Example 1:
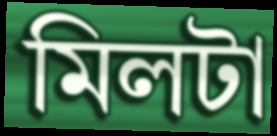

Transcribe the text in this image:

মিলটা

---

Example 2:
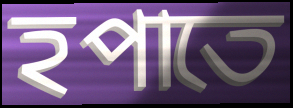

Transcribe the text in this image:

হপাতে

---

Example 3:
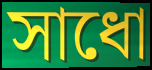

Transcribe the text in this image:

সাধো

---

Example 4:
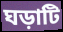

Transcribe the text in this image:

ঘড়াটি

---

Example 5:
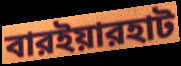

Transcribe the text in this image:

বারইয়ারহাট